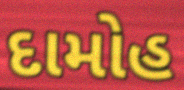
દામોહ